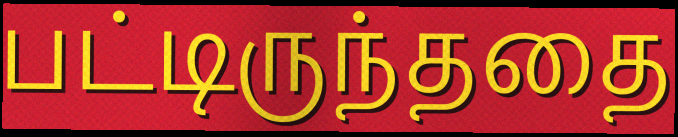
பட்டிருந்ததை